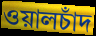
ওয়ালচাঁদ